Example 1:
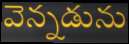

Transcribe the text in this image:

వెన్నడును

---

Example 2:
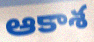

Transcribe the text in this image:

ఆకాశ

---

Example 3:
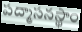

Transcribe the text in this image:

పద్మాసనస్థాం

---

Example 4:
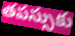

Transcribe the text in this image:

తపస్సుకు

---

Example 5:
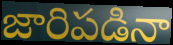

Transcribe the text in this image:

జారిపడినా